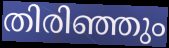
തിരിഞ്ഞും